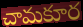
చామకూర